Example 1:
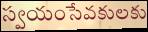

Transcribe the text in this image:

స్వయంసేవకులకు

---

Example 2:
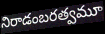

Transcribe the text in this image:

నిరాడంబరత్వమూ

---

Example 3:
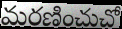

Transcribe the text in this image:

మరణించుచో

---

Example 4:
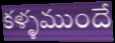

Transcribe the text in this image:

కళ్ళముందే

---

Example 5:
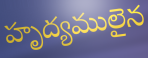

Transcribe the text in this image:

హృద్యములైన